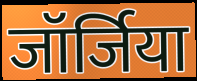
जॉर्जिया